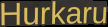
Hurkaru